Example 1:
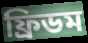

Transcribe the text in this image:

ফ্ৰিডম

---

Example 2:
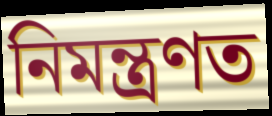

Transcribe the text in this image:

নিমন্ত্ৰণত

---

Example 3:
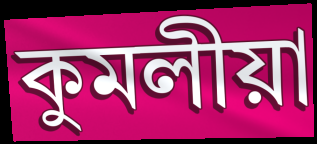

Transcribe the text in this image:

কুমলীয়া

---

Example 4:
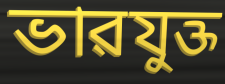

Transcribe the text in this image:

ভাৱযুক্ত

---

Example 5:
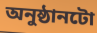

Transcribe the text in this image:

অনুষ্ঠানটো